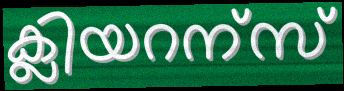
ക്ലിയറന്സ്